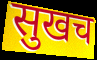
सुखच